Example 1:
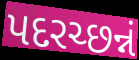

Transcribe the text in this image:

પદરચ્છન્નં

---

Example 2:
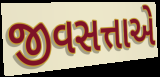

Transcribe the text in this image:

જીવસત્તાએ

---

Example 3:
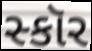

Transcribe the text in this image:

સ્કૉર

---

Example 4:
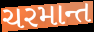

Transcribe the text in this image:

ચરમાન્ત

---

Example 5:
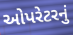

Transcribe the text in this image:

ઓપરેટરનું